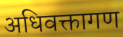
अधिवक्तागण